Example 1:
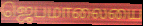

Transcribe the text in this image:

ஜெபமாலையை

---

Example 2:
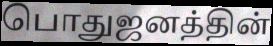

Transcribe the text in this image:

பொதுஜனத்தின்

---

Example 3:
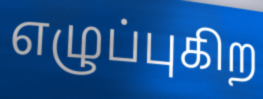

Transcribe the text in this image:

எழுப்புகிற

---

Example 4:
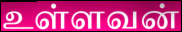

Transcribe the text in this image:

உள்ளவன்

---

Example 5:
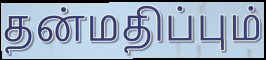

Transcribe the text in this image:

தன்மதிப்பும்